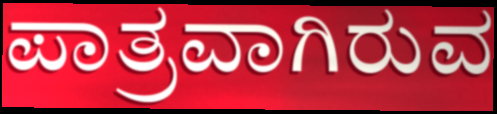
ಪಾತ್ರವಾಗಿರುವ